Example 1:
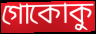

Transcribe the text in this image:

গোকোকু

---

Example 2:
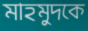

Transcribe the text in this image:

মাহমুদকে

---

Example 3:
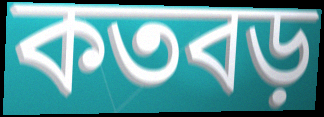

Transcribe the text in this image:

কতবড়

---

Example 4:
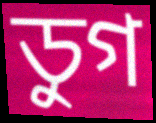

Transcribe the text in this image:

ডুগ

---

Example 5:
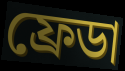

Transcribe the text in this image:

ফ্রেডা